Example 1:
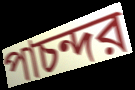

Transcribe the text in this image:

পাচন্দর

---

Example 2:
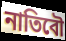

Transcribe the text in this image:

নাতিবৌ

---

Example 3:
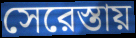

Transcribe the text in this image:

সেরেস্তায়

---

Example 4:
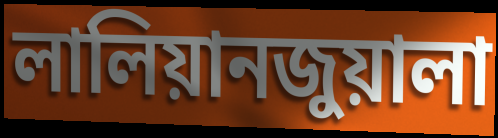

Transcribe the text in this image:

লালিয়ানজুয়ালা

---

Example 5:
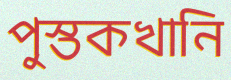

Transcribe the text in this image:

পুস্তকখানি